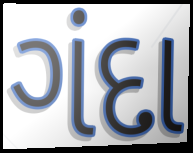
ગંદા